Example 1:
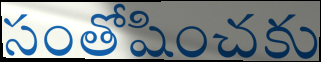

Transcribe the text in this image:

సంతోషించకు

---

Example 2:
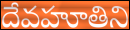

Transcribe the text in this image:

దేవహూతిని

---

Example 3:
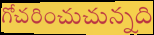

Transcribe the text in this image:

గోచరించుచున్నది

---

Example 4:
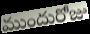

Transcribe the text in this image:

ముందురోజు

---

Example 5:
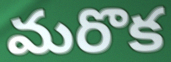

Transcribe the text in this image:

మరొక